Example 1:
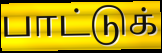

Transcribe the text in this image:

பாட்டுக்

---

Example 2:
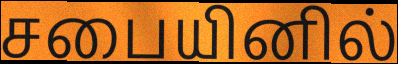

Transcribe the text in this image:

சபையினில்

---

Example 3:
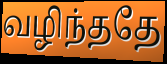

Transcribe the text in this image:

வழிந்ததே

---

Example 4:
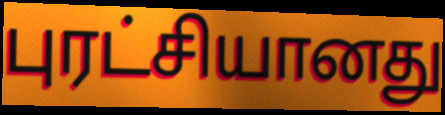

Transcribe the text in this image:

புரட்சியானது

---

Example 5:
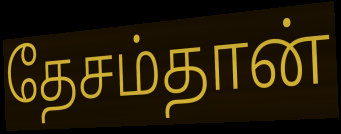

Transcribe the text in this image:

தேசம்தான்